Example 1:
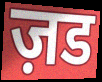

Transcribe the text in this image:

ज़ड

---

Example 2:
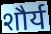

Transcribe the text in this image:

शौर्य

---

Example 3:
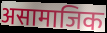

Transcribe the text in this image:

असामाजिक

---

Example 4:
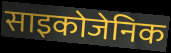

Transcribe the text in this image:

साइकोजेनिक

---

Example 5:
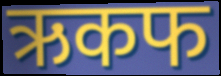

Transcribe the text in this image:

ऋकफ